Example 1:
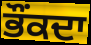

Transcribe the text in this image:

ਭੌਂਕਦਾ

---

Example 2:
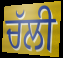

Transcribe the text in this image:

ਚੱਲੀ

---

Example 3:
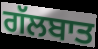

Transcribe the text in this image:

ਗੱਲਬਾਤ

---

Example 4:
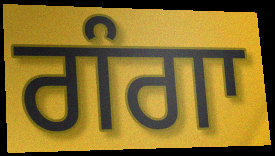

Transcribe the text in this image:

ਗੰਗਾ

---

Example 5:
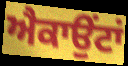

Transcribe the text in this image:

ਐਕਾਉਂਟਾਂ